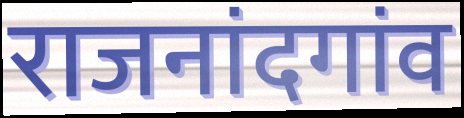
राजनांदगांव